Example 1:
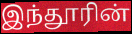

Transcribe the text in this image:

இந்தூரின்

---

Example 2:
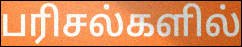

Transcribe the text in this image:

பரிசல்களில்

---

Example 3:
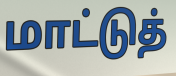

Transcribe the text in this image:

மாட்டுத்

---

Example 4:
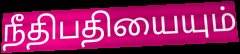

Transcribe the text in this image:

நீதிபதியையும்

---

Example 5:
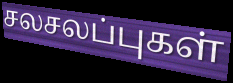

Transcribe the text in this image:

சலசலப்புகள்